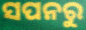
ସପନରୁ